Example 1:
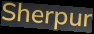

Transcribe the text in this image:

Sherpur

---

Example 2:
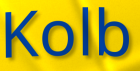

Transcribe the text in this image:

Kolb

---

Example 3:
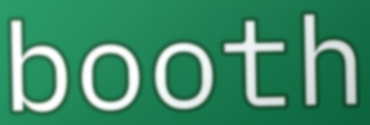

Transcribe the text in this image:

booth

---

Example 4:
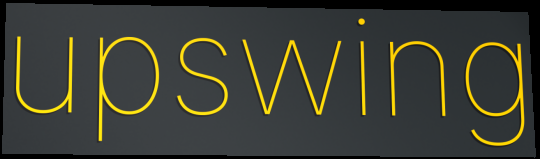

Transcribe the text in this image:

upswing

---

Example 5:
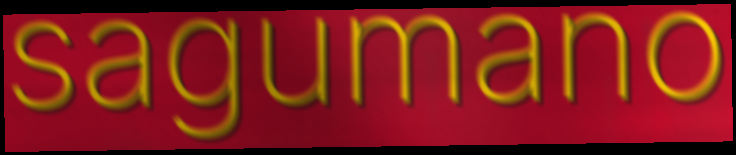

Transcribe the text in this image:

sagumano